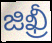
జిఖ్రీ